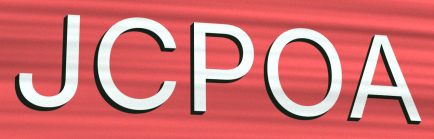
JCPOA